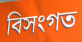
বিসংগত